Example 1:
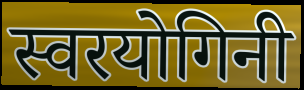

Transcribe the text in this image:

स्वरयोगिनी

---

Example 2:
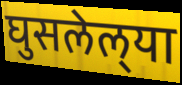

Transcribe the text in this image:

घुसलेल्या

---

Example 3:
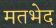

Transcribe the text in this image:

मतभेद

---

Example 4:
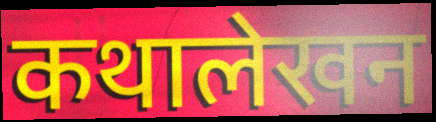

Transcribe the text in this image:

कथालेखन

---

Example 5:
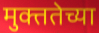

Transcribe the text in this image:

मुक्ततेच्या